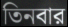
তিনবার